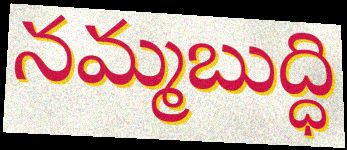
నమ్మబుద్ధి